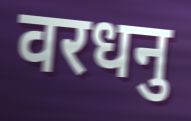
वरधनु